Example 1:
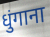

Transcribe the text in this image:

धुंगाना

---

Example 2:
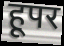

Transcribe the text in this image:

हूपर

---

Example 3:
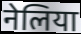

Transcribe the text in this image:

नेलिया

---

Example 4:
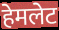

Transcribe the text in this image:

हेमलेट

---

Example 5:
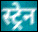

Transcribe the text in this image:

स्ट्रेन